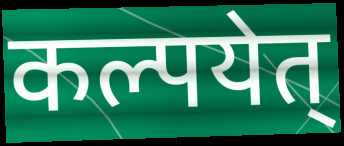
कल्पयेत्